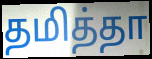
தமித்தா